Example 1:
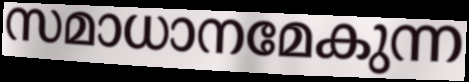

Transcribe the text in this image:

സമാധാനമേകുന്ന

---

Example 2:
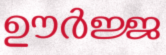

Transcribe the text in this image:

ഊർജ്ജ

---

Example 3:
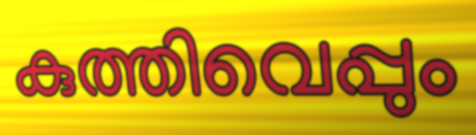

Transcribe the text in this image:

കുത്തിവെപ്പും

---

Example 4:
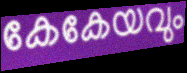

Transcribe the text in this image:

കേകേയവും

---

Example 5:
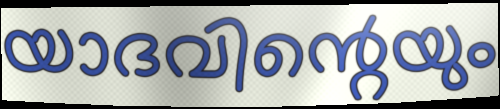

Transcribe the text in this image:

യാദവിന്റെയും